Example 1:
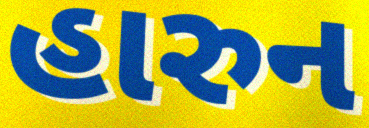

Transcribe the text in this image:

હારુન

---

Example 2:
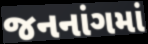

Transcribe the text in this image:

જનનાંગમાં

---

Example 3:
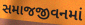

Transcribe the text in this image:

સમાજજીવનમાં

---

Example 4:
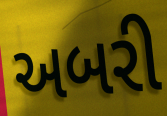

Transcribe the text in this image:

અબરી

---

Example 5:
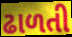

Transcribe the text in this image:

ઢાળતી